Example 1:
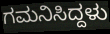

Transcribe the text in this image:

ಗಮನಿಸಿದ್ದಳು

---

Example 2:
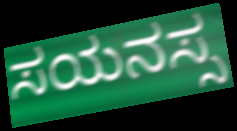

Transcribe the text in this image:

ಸಯನಸ್ಸ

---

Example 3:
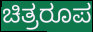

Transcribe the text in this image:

ಚಿತ್ರರೂಪ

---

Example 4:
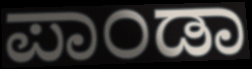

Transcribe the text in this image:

ಪಾಂಡಾ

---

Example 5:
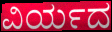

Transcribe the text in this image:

ವಿರ್ಯದ